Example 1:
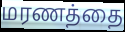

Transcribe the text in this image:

மரணத்தை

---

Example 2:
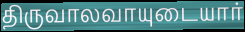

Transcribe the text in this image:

திருவாலவாயுடையார்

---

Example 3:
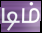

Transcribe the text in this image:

டிம்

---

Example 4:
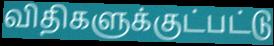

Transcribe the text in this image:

விதிகளுக்குட்பட்டு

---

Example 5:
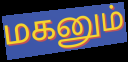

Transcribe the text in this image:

மகனும்